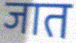
जात